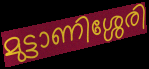
മുട്ടാണിശ്ശേരി